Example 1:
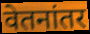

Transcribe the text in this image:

वेतनांतर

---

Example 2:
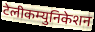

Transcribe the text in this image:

टेलीकम्युनिकेशन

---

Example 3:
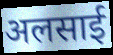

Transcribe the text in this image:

अलसाई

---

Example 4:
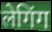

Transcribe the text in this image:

लेगिंग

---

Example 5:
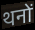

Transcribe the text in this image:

थनों